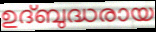
ഉദ്ബുദ്ധരായ